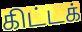
கிட்டக்